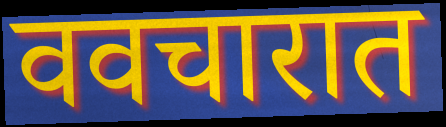
ववचारात